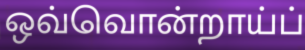
ஒவ்வொன்றாய்ப்